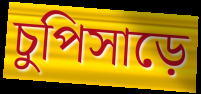
চুপিসাড়ে